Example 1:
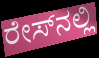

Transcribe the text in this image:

ರೇಸ್‍ನಲ್ಲಿ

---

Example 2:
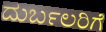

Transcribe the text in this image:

ದುರ್ಬಲರಿಗೆ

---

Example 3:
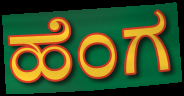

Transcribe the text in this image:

ಹೆಂಗ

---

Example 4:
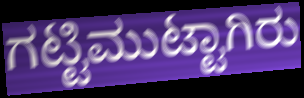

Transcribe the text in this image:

ಗಟ್ಟಿಮುಟ್ಟಾಗಿರು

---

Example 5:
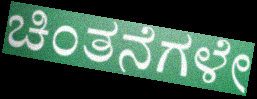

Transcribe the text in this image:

ಚಿಂತನೆಗಳೇ